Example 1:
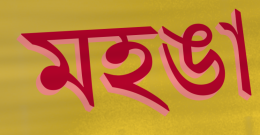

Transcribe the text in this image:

মহঙা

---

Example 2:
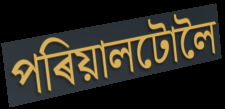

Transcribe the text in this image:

পৰিয়ালটোলৈ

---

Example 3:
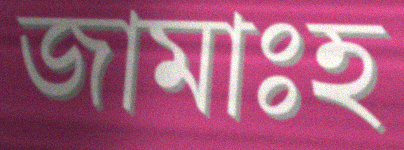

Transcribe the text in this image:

জামাঃহ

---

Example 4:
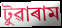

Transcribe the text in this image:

টুৱাৰাম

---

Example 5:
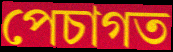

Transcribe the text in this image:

পেচাগত